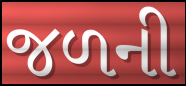
જળની